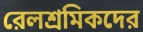
রেলশ্রমিকদের